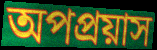
অপপ্রয়াস